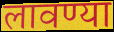
लावण्या